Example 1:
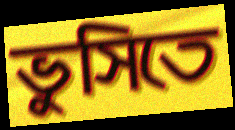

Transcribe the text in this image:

ভুসিতে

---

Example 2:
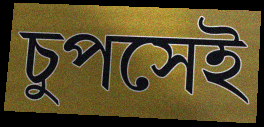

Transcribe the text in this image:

চুপসেই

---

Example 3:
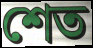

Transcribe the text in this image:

শেত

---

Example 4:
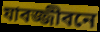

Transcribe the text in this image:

যাবজ্জীবনে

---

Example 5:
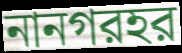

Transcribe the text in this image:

নানগরহর